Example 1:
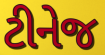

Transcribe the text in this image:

ટીનેજ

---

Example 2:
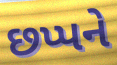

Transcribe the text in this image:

છપ્પને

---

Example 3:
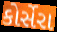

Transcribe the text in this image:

કોર્સેરા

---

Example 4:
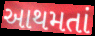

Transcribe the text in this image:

આથમતાં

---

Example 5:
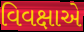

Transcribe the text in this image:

વિવક્ષાએ